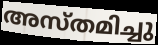
അസ്തമിച്ചു